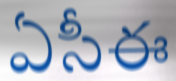
ఏసీఈ